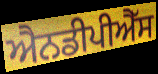
ਐਨਡੀਪੀਐੱਸ